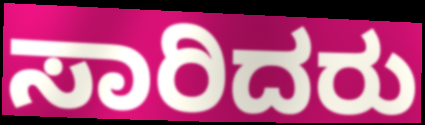
ಸಾರಿದರು